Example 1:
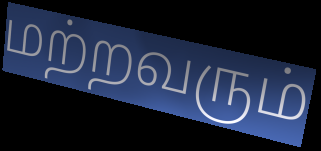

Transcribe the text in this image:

மற்றவரும்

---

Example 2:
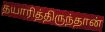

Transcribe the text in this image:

தயாரித்திருந்தான்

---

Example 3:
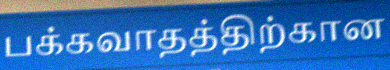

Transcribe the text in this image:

பக்கவாதத்திற்கான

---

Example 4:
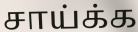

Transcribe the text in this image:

சாய்க்க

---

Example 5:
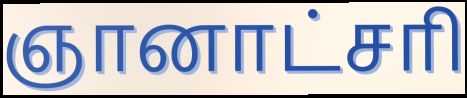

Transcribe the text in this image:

ஞானாட்சரி